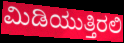
ಮಿಡಿಯುತ್ತಿರಲಿ